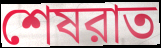
শেষরাত